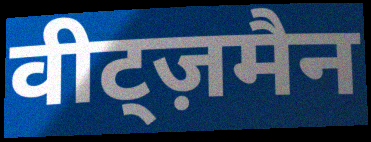
वीट्ज़मैन